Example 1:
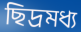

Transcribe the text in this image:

ছিদ্রমধ্য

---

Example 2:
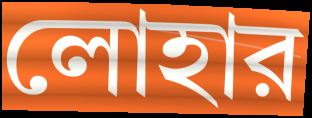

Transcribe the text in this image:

লোহার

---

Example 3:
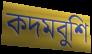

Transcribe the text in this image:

কদমবুশি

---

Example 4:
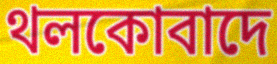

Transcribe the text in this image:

থলকোবাদে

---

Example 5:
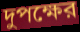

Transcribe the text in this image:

দুপক্ষের